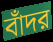
বাঁদর